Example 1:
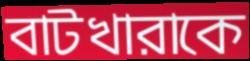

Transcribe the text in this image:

বাটখারাকে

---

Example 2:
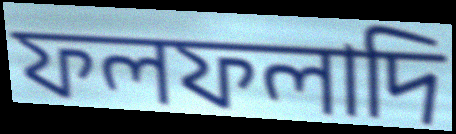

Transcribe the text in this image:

ফলফলাদি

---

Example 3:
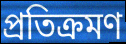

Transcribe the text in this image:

প্রতিক্রমণ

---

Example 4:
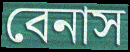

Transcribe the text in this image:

বেনাস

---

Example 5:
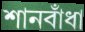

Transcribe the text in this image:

শানবাঁধা